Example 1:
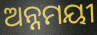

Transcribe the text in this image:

ଅନ୍ନମୟୀ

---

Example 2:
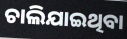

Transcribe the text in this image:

ଚାଲିଯାଇଥିବା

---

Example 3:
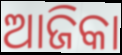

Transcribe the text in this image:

ଆଜିକା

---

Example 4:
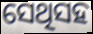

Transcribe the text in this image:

ସେଥିସହ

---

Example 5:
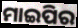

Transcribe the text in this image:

ମାଇପିର